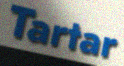
Tartar